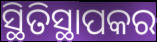
ସ୍ଥିତିସ୍ଥାପକର